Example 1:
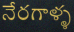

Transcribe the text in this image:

నేరగాళ్ళ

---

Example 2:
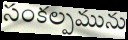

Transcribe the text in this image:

సంకల్పమును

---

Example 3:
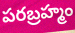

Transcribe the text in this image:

పరబ్రహ్మం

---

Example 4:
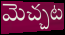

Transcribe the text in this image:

మెచ్చట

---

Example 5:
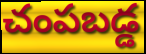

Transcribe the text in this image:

చంపబడ్డ